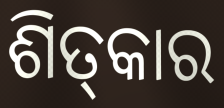
ଶିତ୍‍କାର